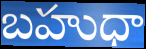
బహుధా